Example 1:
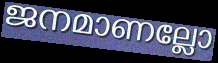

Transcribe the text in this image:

ജനമാണല്ലോ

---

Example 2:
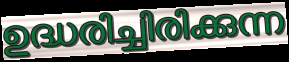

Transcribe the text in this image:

ഉദ്ധരിച്ചിരിക്കുന്ന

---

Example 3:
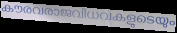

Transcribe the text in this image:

കൗരവരാജവിധവകളുടെയും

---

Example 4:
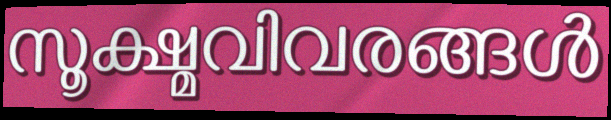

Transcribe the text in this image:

സൂക്ഷ്മവിവരങ്ങൾ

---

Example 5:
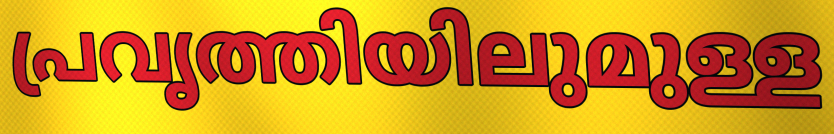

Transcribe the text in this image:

പ്രവൃത്തിയിലുമുള്ള